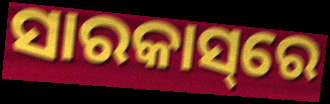
ସାରକାସ୍‌ରେ